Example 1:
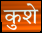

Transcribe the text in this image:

कुशे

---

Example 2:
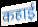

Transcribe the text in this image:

कहाई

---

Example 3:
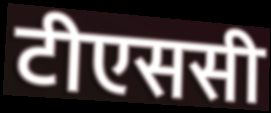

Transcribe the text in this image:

टीएससी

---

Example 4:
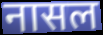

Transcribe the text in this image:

नासल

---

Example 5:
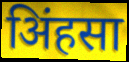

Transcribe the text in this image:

अिंहसा